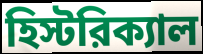
হিস্টরিক্যাল